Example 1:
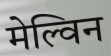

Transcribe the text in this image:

मेल्विन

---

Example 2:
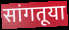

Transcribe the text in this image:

सांगतूया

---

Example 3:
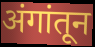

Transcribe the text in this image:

अंगांतून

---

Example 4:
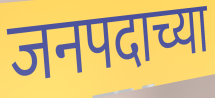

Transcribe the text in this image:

जनपदाच्या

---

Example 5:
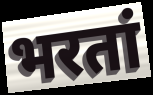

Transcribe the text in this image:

भरतां